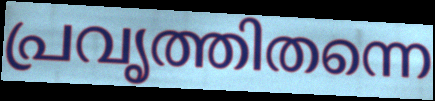
പ്രവൃത്തിതന്നെ